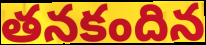
తనకందిన